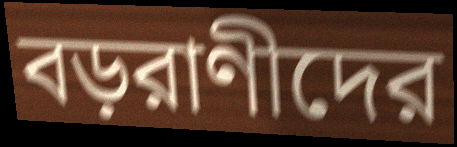
বড়রাণীদের